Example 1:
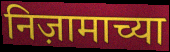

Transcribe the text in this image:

निज़ामाच्या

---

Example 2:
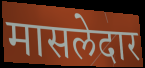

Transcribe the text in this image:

मासलेदार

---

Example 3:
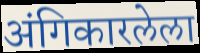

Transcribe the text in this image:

अंगिकारलेला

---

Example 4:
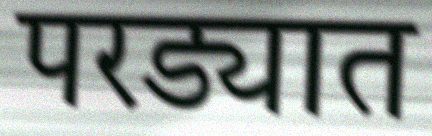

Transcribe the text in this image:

परड्यात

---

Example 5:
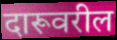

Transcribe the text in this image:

दारूवरील